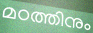
മഠത്തിനും